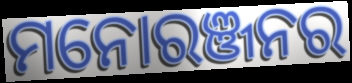
ମନୋରଞ୍ଜନର